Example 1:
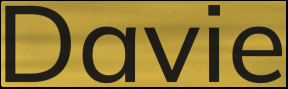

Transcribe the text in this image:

Davie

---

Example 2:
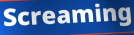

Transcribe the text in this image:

Screaming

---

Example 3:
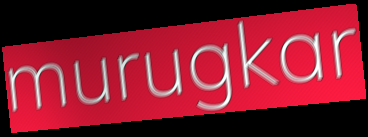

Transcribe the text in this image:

murugkar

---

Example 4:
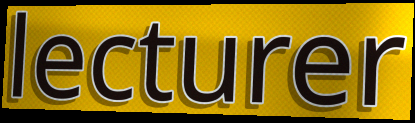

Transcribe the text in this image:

lecturer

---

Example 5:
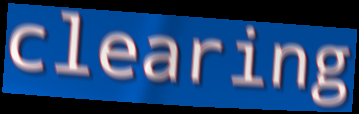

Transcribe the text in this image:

clearing